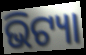
ଭିଟ୍ୟା